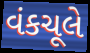
વંકચૂલે